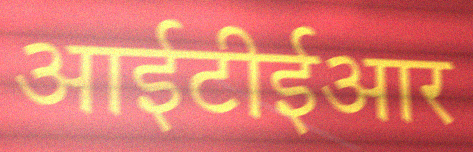
आईटीईआर